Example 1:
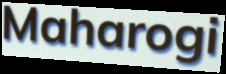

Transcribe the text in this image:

Maharogi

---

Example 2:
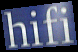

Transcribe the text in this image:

hifi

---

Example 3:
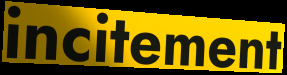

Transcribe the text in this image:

incitement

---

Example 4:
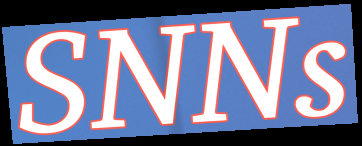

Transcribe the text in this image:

SNNs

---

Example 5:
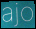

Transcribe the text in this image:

ajo